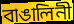
বাঙালিনী